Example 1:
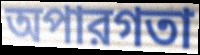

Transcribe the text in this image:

অপারগতা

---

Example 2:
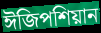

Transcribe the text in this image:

ঈজিপশিয়ান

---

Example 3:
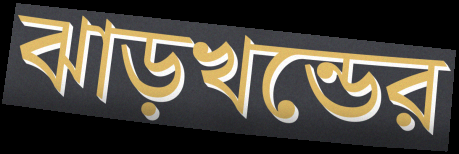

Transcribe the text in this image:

ঝাড়খন্ডের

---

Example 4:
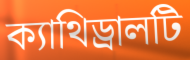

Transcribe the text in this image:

ক্যাথিড্রালটি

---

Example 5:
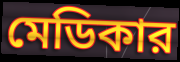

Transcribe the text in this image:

মেডিকার